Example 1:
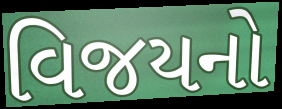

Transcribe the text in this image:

વિજયનો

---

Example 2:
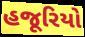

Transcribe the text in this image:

હજૂરિયો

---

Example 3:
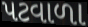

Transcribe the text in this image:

પટવાળા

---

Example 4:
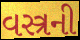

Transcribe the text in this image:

વસ્ત્રની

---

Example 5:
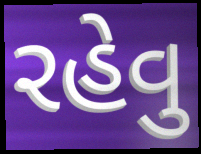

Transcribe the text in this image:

રહેવુ